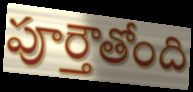
పూర్తౌతోంది